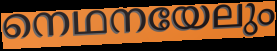
നെഥനയേലും